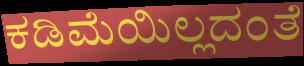
ಕಡಿಮೆಯಿಲ್ಲದಂತೆ